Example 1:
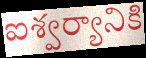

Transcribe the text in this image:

ఐశ్వర్యానికి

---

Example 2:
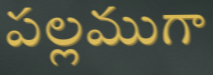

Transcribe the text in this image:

పల్లముగా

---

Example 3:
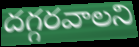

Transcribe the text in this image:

దగ్గరవాలని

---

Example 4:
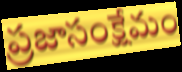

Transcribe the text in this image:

ప్రజాసంక్షేమం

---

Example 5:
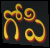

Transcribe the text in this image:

గోపి